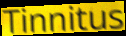
Tinnitus